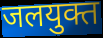
जलयुक्त